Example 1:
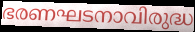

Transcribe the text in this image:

ഭരണഘടനാവിരുദ്ധ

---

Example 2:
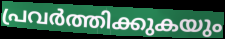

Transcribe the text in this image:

പ്രവർത്തിക്കുകയും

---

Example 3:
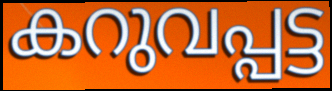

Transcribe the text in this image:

കറുവപ്പട്ട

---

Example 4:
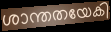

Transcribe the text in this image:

ശാന്തതയേകി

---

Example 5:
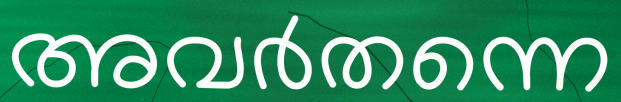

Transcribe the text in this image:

അവർതന്നെ